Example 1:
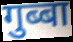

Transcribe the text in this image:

गुब्बा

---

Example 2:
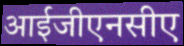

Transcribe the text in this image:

आईजीएनसीए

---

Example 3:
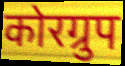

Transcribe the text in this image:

कोरग्रुप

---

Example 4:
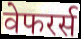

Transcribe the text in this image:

वेफरर्स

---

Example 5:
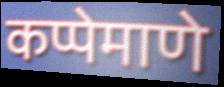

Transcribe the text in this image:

कप्पेमाणे